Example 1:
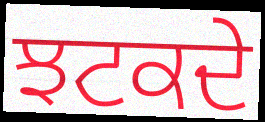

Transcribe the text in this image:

ਝਟਕਦੇ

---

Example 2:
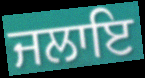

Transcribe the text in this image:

ਜਲਾਇ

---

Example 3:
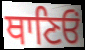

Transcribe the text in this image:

ਥਾਣਿਓਂ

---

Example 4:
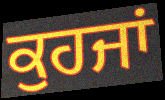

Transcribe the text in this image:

ਕੁਹਜਾਂ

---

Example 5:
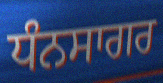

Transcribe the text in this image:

ਧੰਨਸਾਗਰ